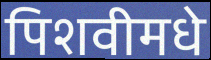
पिशवीमधे